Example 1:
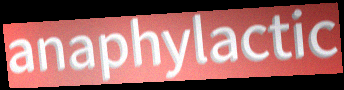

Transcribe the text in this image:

anaphylactic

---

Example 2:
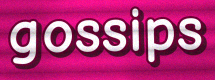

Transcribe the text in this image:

gossips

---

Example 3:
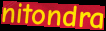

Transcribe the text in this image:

nitondra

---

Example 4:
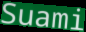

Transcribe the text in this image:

Suami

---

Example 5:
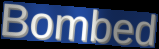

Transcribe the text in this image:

Bombed